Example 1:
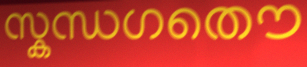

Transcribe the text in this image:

സ്കന്ധഗതൌ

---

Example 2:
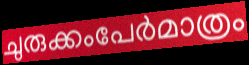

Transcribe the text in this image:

ചുരുക്കംപേർമാത്രം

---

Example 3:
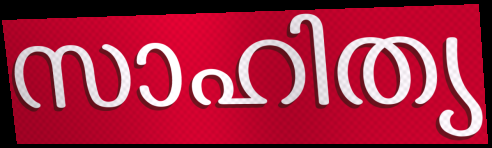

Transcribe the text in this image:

സാഹിത്യ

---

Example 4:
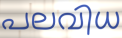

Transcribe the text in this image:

പലവിധ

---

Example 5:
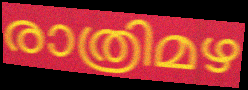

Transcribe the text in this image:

രാത്രിമഴ